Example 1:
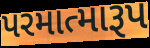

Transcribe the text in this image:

પરમાત્મારૂપ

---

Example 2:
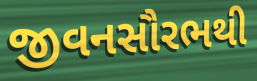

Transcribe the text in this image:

જીવનસૌરભથી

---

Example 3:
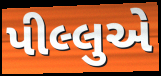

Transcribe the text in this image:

પીલ્લુએ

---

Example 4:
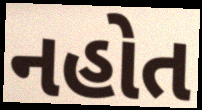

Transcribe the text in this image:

નહોત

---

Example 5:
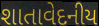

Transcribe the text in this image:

શાતાવેદનીય